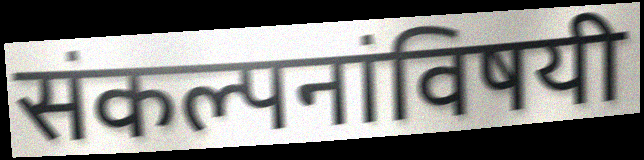
संकल्पनांविषयी